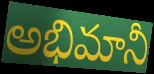
అభిమానీ